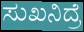
ಸುಖನಿದ್ರೆ